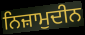
ਨਿਜ਼ਾਮੁਦੀਨ